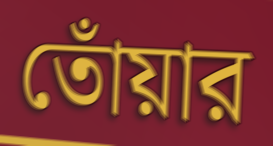
তোঁয়ার